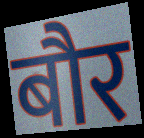
बौर